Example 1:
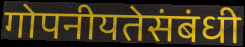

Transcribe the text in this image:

गोपनीयतेसंबंधी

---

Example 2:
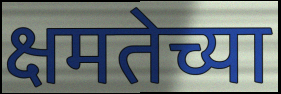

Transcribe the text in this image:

क्षमतेच्या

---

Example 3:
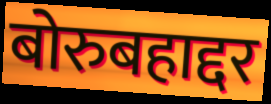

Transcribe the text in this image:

बोरुबहाद्दर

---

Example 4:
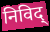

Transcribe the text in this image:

निविद्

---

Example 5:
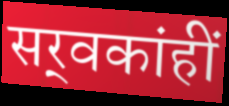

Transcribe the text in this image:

सर्वकांहीं